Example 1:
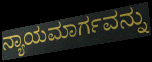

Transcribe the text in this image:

ನ್ಯಾಯಮಾರ್ಗವನ್ನು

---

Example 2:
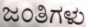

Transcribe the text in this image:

ಜಂತಿಗಳು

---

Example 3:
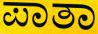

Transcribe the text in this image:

ಪಾತಾ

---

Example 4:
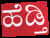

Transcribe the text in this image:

ಹೆಡ್ತಿ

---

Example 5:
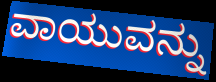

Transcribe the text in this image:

ವಾಯುವನ್ನು